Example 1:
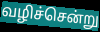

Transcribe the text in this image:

வழிச்சென்று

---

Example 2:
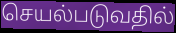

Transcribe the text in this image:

செயல்படுவதில்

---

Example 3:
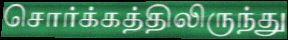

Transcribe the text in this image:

சொர்க்கத்திலிருந்து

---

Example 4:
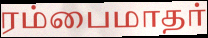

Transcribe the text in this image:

ரம்பைமாதர்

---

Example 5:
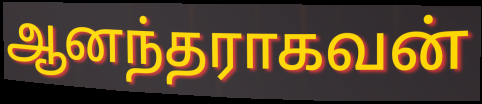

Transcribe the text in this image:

ஆனந்தராகவன்